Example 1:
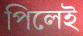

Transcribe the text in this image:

পিলেই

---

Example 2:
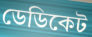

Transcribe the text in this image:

ডেডিকেট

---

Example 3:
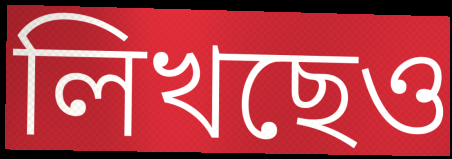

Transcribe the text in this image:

লিখছেও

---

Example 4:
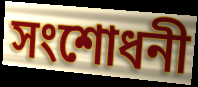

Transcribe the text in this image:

সংশোধনী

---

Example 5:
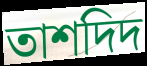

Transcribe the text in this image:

তাশদিদ